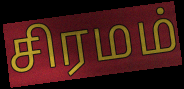
சிரமம்